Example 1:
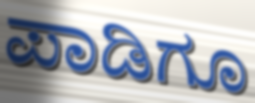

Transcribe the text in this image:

ಪಾಡಿಗೂ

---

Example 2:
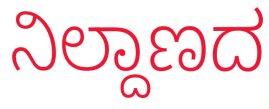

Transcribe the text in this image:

ನಿಲ್ದಾಣದ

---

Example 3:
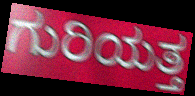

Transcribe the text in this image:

ಗುರಿಯತ್ತ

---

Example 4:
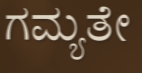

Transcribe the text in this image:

ಗಮ್ಯತೇ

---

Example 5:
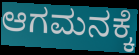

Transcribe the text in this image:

ಆಗಮನಕ್ಕೆ